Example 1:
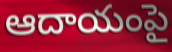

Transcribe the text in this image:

ఆదాయంపై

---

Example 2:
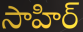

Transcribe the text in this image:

సాహిర్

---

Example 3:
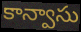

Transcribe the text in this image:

కాన్వాసు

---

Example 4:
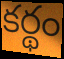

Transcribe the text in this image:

కర్థం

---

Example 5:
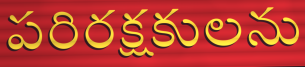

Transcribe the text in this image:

పరిరక్షకులను